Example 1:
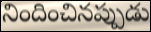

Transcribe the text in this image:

నిందించినప్పుడు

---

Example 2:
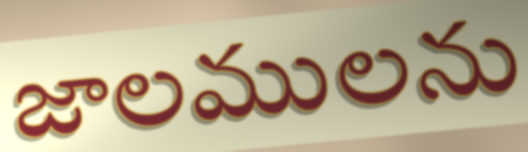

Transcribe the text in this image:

జాలములను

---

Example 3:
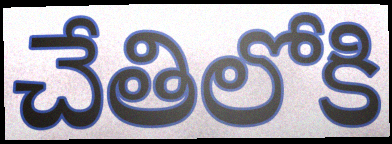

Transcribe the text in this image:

చేతిలోకి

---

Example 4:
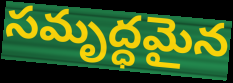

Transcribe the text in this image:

సమృద్ధమైన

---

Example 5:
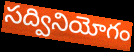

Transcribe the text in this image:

సద్వినియోగం